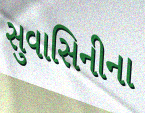
સુવાસિનીના